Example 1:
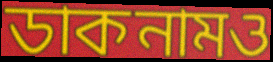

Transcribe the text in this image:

ডাকনামও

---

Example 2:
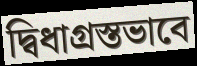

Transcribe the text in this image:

দ্বিধাগ্রস্তভাবে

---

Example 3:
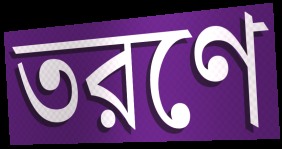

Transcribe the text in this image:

তরণে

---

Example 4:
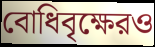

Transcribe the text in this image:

বোধিবৃক্ষেরও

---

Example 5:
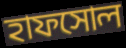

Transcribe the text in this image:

হাফসোল